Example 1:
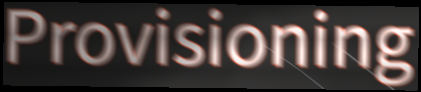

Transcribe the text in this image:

Provisioning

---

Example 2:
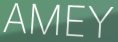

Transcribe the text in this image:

AMEY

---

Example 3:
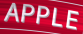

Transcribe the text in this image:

APPLE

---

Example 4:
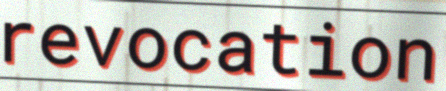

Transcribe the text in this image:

revocation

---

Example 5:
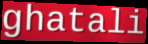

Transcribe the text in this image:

ghatali